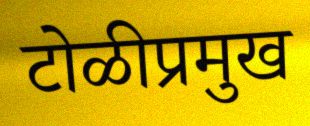
टोळीप्रमुख